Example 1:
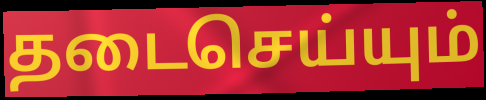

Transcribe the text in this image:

தடைசெய்யும்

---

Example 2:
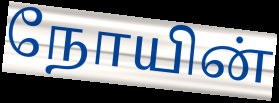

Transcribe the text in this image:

நோயின்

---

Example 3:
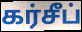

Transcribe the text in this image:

கர்சீப்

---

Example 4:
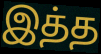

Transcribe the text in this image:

இத்த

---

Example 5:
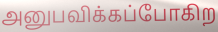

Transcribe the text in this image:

அனுபவிக்கப்போகிற